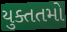
યુક્તતમો